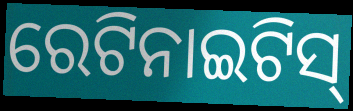
ରେଟିନାଇଟିସ୍